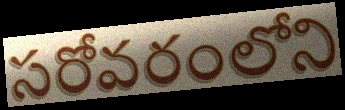
సరోవరంలోని